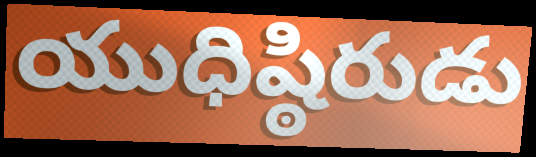
యుధిష్ఠిరుడు